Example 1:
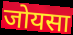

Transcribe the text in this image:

जोयसा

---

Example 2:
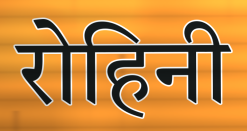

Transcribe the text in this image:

रोहिनी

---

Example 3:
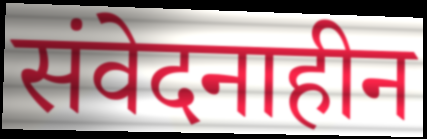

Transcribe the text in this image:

संवेदनाहीन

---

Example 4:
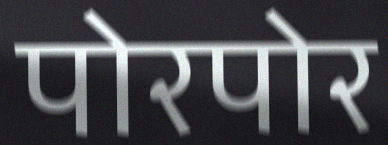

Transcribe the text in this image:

पोरपोर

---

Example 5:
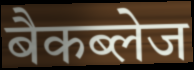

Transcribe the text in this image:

बैकब्लेज